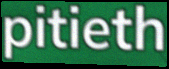
pitieth